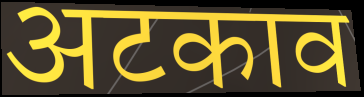
अटकाव